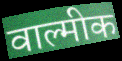
वाल्मीक